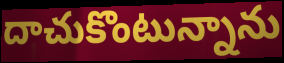
దాచుకొంటున్నాను